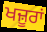
ਖਜ਼ੂਰਾਂ